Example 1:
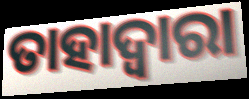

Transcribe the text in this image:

ତାହାଦ୍ୱାରା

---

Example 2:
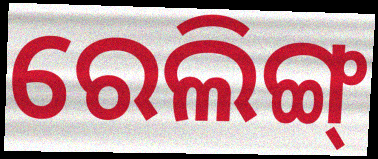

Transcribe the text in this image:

ରେଲିଙ୍ଗ୍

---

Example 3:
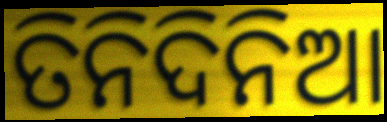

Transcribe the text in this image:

ତିନିଦିନିଆ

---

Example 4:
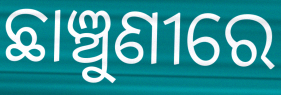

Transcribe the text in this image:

ଛାଞ୍ଚୁଣୀରେ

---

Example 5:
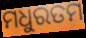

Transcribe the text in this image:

ମଧୁରତମ